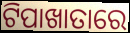
ଟିପାଖାତାରେ